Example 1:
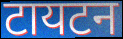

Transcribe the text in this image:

टायटन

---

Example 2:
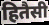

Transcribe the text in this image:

हितैसी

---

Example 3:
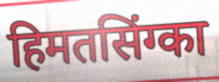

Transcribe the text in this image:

हिमतसिंग्का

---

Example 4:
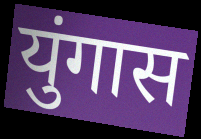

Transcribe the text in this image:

युंगास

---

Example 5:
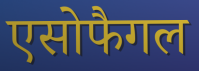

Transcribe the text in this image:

एसोफैगल